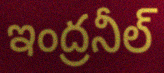
ఇంద్రనీల్